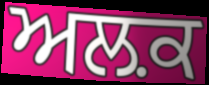
ਅਲ਼ਕ